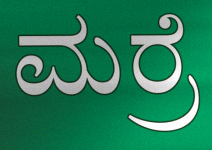
ಮರ್ರೆ